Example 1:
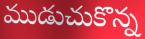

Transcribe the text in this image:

ముడుచుకొన్న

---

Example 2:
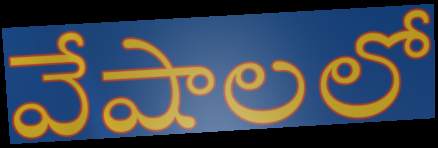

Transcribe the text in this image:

వేషాలలో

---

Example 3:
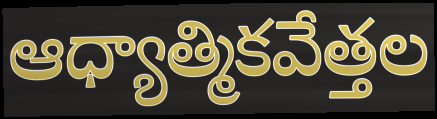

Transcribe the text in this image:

ఆధ్యాత్మికవేత్తల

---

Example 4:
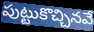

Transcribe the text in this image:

పుట్టుకొచ్చినవే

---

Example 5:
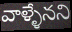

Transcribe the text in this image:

వాళ్ళేనని